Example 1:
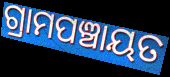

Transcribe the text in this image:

ଗ୍ରାମପଞ୍ଚାୟତ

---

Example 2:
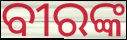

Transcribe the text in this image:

ବୀରଙ୍କ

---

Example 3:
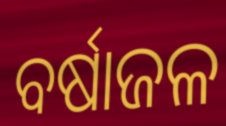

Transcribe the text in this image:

ବର୍ଷାଜଳ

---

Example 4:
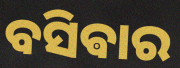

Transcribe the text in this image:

ବସିଵାର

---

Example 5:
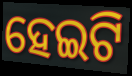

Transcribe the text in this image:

ହେଇଟି